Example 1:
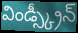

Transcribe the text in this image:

విండ్స్క్రీన్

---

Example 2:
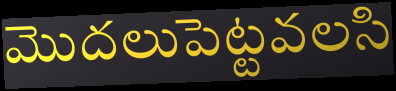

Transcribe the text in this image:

మొదలుపెట్టవలసి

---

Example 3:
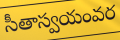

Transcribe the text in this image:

సీతాస్వయంవర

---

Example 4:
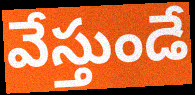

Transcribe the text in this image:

వేస్తుండే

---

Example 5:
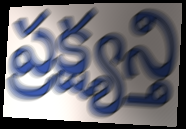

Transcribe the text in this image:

ప్రక్ష్యన్తి